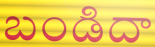
బండిదా